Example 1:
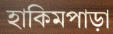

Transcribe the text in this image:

হাকিমপাড়া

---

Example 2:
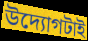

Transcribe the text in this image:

উদ্যোগটাই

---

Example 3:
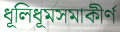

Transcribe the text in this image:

ধূলিধূমসমাকীর্ণ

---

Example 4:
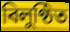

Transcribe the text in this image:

বিলুণ্ঠিত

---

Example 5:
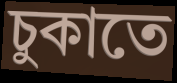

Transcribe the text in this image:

চুকাতে